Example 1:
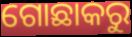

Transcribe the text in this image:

ଗୋଛାକରୁ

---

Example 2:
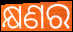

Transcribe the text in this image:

କ୍ଷଣର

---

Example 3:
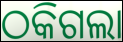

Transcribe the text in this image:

ଠକିଗଲା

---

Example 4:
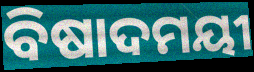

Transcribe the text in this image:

ବିଷାଦମୟୀ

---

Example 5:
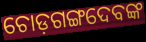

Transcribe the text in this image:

ଚୋଡ଼ଗଙ୍ଗଦେବଙ୍କ